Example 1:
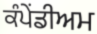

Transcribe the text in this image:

ਕੰਪੇਂਡੀਅਮ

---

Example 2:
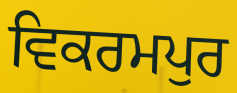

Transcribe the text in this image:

ਵਿਕਰਮਪੁਰ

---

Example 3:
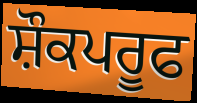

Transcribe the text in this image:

ਸ਼ੌਕਪਰੂਫ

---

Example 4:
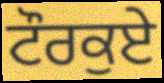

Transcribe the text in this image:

ਟੌਰਕੁਏ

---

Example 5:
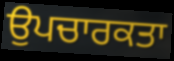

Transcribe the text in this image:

ਉਪਚਾਰਕਤਾ